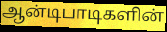
ஆன்டிபாடிகளின்